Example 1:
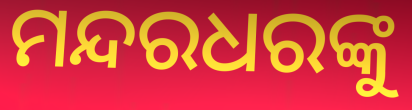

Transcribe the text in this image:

ମନ୍ଦରଧରଙ୍କୁ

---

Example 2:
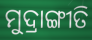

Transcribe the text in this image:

ମୁଦ୍ରାଙ୍ଗୀତି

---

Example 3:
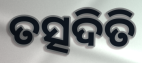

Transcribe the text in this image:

ତତ୍ସଦିତି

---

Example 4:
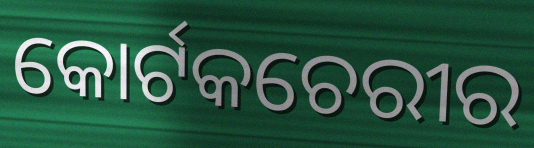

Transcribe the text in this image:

କୋର୍ଟକଚେରୀର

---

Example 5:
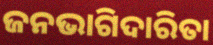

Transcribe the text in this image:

ଜନଭାଗିଦାରିତା